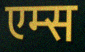
एम्स